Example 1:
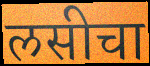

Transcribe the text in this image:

लसीचा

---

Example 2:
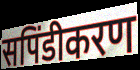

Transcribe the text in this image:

सपिंडीकरण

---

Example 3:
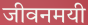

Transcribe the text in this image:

जीवनमयी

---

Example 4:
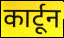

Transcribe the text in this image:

कार्टून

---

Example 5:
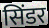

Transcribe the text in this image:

सिंडर